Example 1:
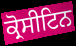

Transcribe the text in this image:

ਕ੍ਰੋਸੀਟਿਨ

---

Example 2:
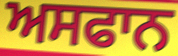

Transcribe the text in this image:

ਅਸਫਾਨ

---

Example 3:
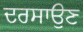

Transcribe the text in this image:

ਦਰਸਾਉਣ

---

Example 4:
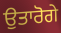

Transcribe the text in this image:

ਉਤਾਰੋਗੇ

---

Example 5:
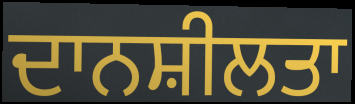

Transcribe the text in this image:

ਦਾਨਸ਼ੀਲਤਾ